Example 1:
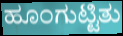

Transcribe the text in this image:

ಹೂಂಗುಟ್ಟಿತು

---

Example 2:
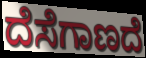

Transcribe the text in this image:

ದೆಸೆಗಾಣದೆ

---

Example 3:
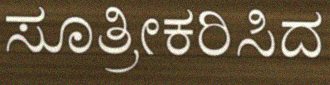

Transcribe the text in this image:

ಸೂತ್ರೀಕರಿಸಿದ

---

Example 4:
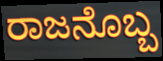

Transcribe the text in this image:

ರಾಜನೊಬ್ಬ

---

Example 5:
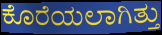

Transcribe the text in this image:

ಕೊರೆಯಲಾಗಿತ್ತು